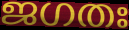
ജഗതഃ